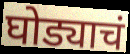
घोड्याचं